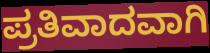
ಪ್ರತಿವಾದವಾಗಿ